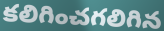
కలిగించగలిగిన